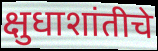
क्षुधाशांतीचे